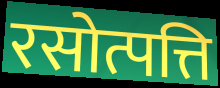
रसोत्पत्ति